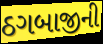
ઠગબાજીની